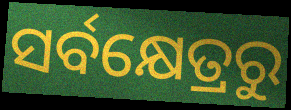
ସର୍ବକ୍ଷେତ୍ରରୁ